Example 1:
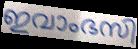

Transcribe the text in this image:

ഇവാംഭസി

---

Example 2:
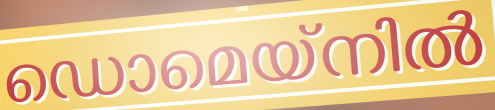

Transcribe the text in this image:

ഡൊമെയ്നിൽ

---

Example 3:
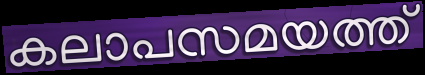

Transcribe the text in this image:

കലാപസമയത്ത്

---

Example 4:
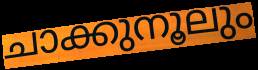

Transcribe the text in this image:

ചാക്കുനൂലും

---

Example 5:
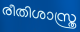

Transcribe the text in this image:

രീതിശാസ്ത്ര